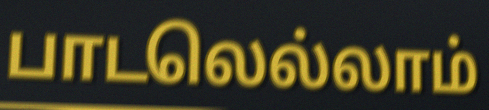
பாடலெல்லாம்